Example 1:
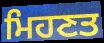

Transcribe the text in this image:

ਮਿਹਣਤ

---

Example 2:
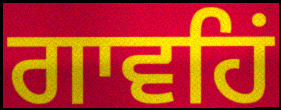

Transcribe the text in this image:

ਗਾਵਹਿਂ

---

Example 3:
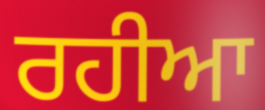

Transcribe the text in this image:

ਰਹੀਆ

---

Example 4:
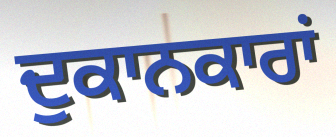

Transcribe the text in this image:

ਦੁਕਾਨਕਾਰਾਂ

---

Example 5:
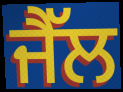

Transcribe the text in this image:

ਜੈੱਲ